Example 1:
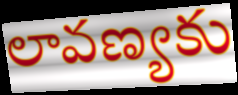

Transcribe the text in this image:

లావణ్యకు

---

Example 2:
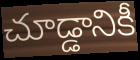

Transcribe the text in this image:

చూడ్డానికీ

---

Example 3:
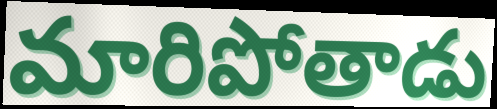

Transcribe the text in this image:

మారిపోతాడు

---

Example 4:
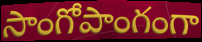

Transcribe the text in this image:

సాంగోపాంగంగా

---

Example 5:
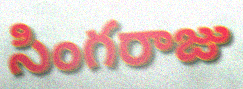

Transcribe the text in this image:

సింగరాజు